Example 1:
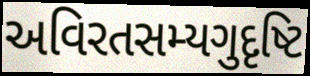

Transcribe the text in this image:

અવિરતસમ્યગુદૃષ્ટિ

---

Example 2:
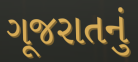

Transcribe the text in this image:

ગૂજરાતનું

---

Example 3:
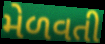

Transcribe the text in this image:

મેળવતી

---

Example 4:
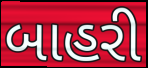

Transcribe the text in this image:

બાહરી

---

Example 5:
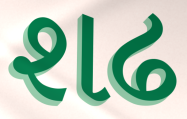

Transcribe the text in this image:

શઢ